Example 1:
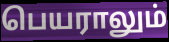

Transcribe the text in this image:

பெயராலும்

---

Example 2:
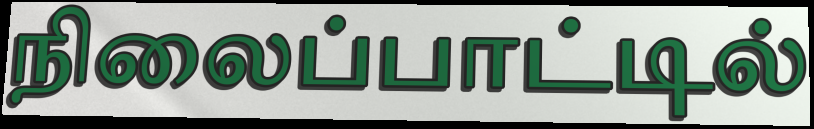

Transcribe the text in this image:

நிலைப்பாட்டில்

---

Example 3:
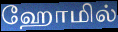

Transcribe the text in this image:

ஹோமில்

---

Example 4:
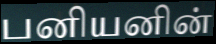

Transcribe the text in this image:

பனியனின்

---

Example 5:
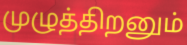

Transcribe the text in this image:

முழுத்திறனும்